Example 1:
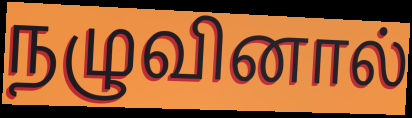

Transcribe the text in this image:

நழுவினால்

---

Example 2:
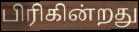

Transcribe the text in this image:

பிரிகின்றது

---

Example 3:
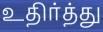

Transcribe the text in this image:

உதிர்த்து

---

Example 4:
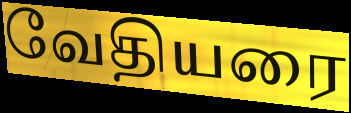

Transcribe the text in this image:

வேதியரை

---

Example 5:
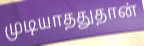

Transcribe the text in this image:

முடியாததுதான்